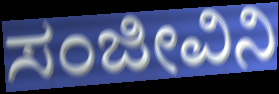
ಸಂಜೀವಿನಿ